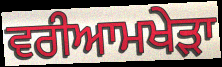
ਵਰੀਆਮਖੇੜਾ